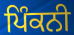
ਪਿੰਕਨੀ